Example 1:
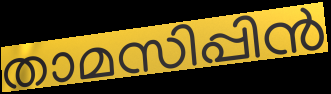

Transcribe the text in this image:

താമസിപ്പിൻ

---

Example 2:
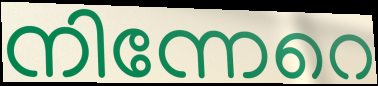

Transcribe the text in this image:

നിന്നേറെ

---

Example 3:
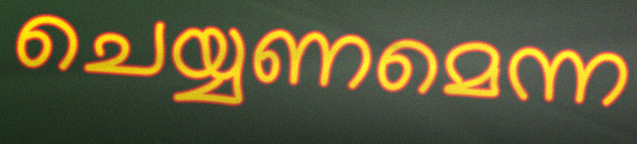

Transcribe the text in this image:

ചെയ്യണമെന്ന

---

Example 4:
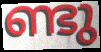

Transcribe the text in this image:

ണ്ടു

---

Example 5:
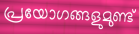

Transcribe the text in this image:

പ്രയോഗങ്ങളുമുണ്ട്